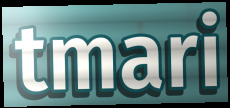
tmari